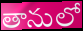
తానులో